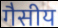
गैसीय